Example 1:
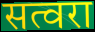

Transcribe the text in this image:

सत्वरा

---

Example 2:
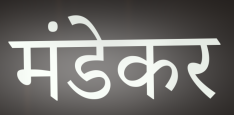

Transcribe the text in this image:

मंडेकर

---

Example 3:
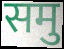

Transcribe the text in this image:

समु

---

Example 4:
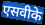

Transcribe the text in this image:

एसवीके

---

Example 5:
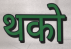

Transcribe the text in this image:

थको